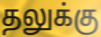
தலுக்கு